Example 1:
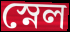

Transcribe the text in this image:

স্নেল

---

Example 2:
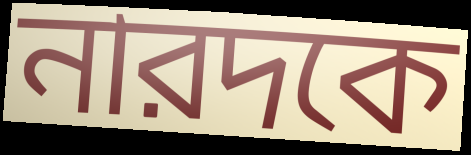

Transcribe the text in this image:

নারদকে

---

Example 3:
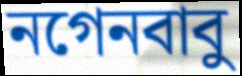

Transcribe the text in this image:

নগেনবাবু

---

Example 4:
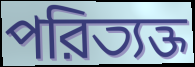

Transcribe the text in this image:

পরিত্যক্ত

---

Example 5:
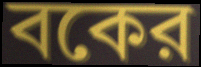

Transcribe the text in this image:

বকের